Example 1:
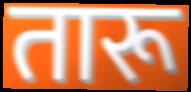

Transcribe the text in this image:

तारू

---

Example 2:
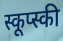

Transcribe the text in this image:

स्कूप्स्की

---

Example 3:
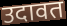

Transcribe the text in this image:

उदावत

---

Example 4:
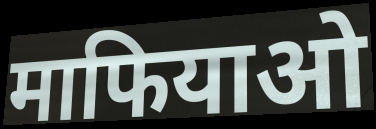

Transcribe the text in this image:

माफियाओ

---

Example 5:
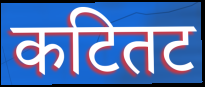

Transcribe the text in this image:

कटितट